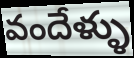
వందేళ్ళు